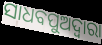
ସାଧବପୁଅଦ୍ୱାରା